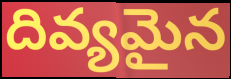
దివ్యమైన